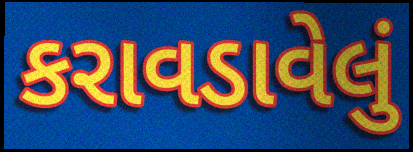
કરાવડાવેલું